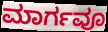
ಮಾರ್ಗವೂ